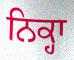
ਨਿਕ੍ਹਾ